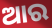
ଆର